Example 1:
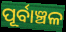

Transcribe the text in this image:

ପୂର୍ବାଞ୍ଚଳ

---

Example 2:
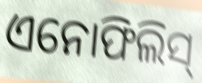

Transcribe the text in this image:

ଏନୋଫିଲିସ୍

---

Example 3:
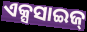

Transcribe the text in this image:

ଏକ୍ସସାଇଜ୍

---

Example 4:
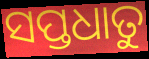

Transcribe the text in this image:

ସପ୍ତଧାତୁ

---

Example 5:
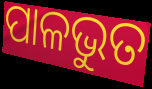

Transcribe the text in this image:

ପାଳଭୁତ